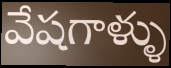
వేషగాళ్ళు